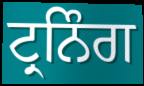
ਟ੍ਰਨਿੰਗ